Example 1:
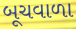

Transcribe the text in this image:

બૂચવાળા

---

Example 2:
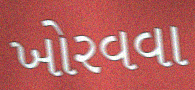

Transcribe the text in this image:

ખોરવવા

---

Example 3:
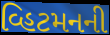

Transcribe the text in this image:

વ્હિટમનની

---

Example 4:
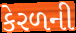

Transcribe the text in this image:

કેરળની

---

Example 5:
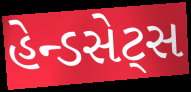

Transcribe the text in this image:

હેન્ડસેટ્સ